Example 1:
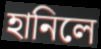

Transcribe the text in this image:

হানিলে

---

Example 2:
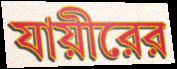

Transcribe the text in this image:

যায়ীরের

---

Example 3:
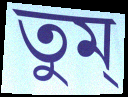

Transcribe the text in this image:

তুম্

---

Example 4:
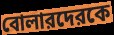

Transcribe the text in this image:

বোলারদেরকে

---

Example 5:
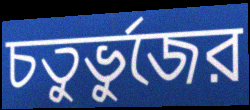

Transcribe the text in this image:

চতুর্ভুজের